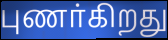
புணர்கிறது